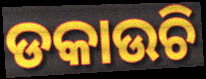
ଡକାଉଚି